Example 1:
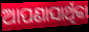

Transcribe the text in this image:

ଆପଣାସାର୍ଥିକା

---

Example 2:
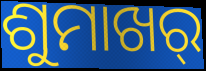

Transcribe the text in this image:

ଶୁମାଖର୍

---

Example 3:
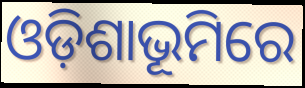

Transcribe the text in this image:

ଓଡ଼ିଶାଭୂମିରେ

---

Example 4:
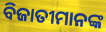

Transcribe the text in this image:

ବିଜାତୀମାନଙ୍କ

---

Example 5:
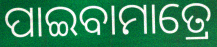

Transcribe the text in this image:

ପାଇବାମାତ୍ରେ